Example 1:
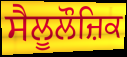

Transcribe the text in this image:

ਸੈਲੂਲੌਜ਼ਿਕ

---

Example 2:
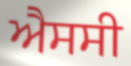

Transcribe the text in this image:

ਐਸਸੀ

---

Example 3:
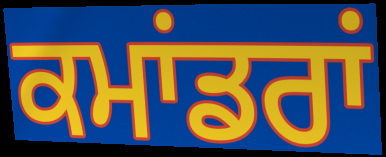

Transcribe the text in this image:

ਕਮਾਂਡਰਾਂ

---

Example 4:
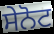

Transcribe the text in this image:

ਸੇਨੋਟ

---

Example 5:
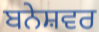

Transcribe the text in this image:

ਬਨੇਸ਼ਵਰ